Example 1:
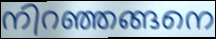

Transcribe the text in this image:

നിറഞ്ഞങ്ങനെ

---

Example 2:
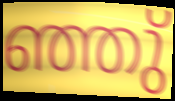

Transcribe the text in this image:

ഞ്ഞു്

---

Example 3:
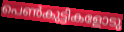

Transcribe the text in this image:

പെൺകുട്ടികളോടു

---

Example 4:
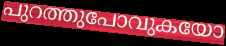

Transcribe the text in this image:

പുറത്തുപോവുകയോ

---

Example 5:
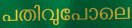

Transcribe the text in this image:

പതിവുപോലെ